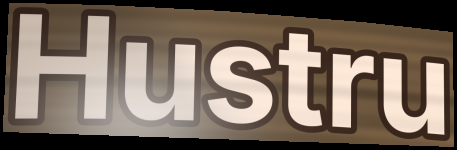
Hustru